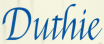
Duthie